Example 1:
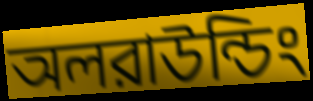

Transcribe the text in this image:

অলরাউন্ডিং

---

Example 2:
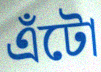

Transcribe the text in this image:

এঁটো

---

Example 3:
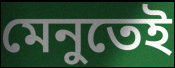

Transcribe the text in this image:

মেনুতেই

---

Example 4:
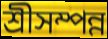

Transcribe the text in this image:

শ্রীসম্পন্ন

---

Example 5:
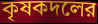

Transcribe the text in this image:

কৃষকদলের